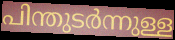
പിന്തുടർന്നുള്ള